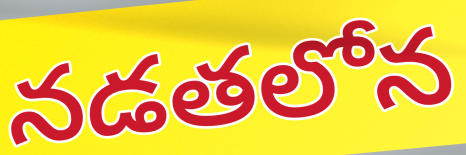
నడతలోన